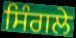
ਸਿੰਗਲੇ